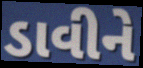
ડાવીને